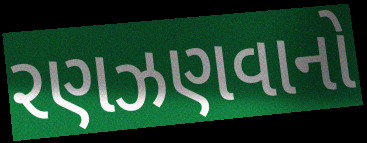
રણઝણવાનો